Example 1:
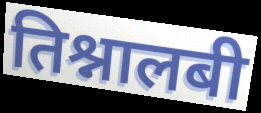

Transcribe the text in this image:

तिश्नालबी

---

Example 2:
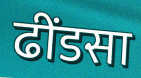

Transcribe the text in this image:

ढींडसा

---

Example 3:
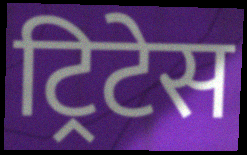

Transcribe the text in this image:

ट्रिटेस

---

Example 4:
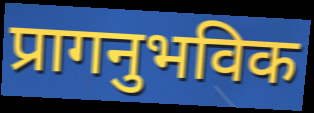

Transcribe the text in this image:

प्रागनुभविक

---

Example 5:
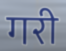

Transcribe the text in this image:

गरी